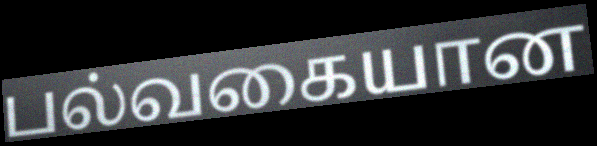
பல்வகையான